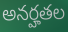
అనర్హతల